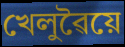
খেলুৱৈয়ে